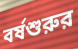
বর্ষশুরুর